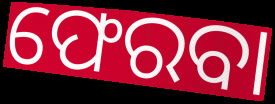
ଫେରବା